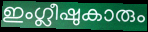
ഇംഗ്ലീഷുകാരും